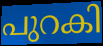
പുറകി